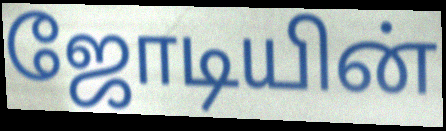
ஜோடியின்